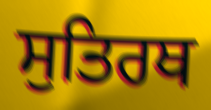
ਸੁਤਿਰਥ